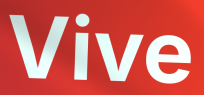
Vive